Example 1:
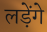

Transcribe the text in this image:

लड़ेंगे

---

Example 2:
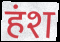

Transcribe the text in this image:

हंश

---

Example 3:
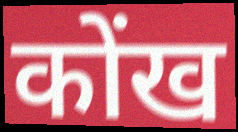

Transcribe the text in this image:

कोंख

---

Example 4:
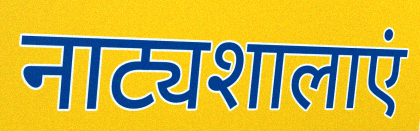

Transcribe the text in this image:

नाट्यशालाएं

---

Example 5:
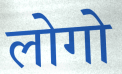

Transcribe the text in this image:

लोगो